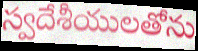
స్వదేశీయులతోను